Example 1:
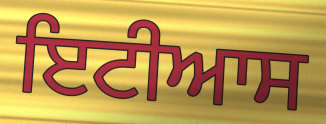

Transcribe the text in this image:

ਇਟੀਆਸ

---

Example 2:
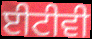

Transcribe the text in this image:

ਈਟੀਵੀ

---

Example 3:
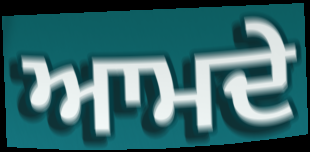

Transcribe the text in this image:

ਆਮਦੇ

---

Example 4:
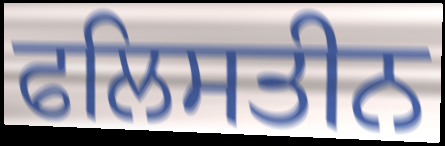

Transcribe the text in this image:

ਫਲਿਸਤੀਨ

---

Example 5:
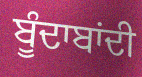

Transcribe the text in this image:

ਬੂੰਦਾਬਾਂਦੀ